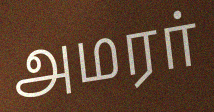
அமரர்